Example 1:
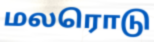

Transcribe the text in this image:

மலரொடு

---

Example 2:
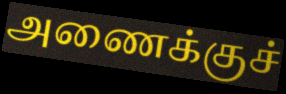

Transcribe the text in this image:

அணைக்குச்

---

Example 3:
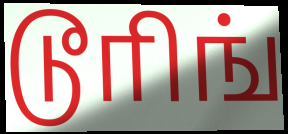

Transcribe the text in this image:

டூரிங்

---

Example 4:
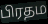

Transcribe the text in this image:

பிரதம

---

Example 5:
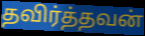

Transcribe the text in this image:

தவிர்த்தவன்